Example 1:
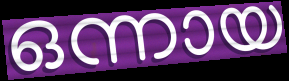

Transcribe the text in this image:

ഒന്നായ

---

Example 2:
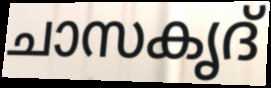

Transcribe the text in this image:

ചാസകൃദ്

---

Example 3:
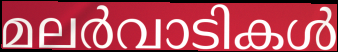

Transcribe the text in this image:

മലർവാടികൾ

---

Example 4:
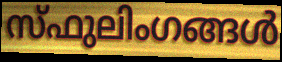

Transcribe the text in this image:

സ്ഫുലിംഗങ്ങൾ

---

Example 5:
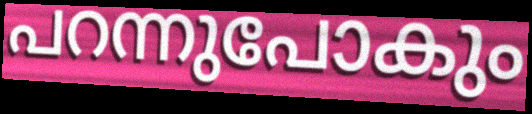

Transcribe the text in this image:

പറന്നുപോകും